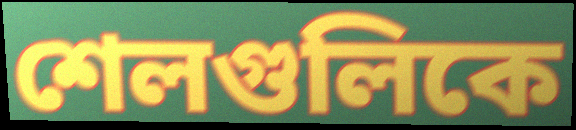
শেলগুলিকে